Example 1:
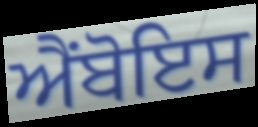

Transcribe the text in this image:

ਐਂਬੋਇਸ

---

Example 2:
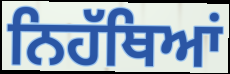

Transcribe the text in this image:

ਨਿਹੱਥਿਆਂ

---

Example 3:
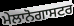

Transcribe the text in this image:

ਮੇਲਾਨੋਗਾਸਟਰ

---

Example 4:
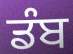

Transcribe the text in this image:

ਡੰਬ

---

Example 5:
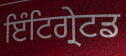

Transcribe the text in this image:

ਇੰਟਿਗ੍ਰੇਟਡ